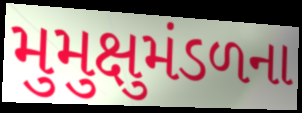
મુમુક્ષુમંડળના